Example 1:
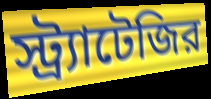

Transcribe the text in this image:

স্ট্র্যাটেজির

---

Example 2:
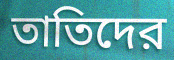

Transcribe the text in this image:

তাতিদের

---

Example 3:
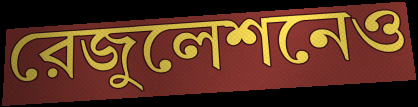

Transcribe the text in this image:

রেজুলেশনেও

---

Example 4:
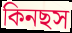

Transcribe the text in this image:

কিনছস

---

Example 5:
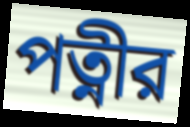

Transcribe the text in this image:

পত্নীর